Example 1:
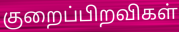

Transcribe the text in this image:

குறைப்பிறவிகள்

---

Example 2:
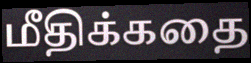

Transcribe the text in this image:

மீதிக்கதை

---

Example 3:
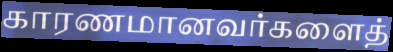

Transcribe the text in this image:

காரணமானவர்களைத்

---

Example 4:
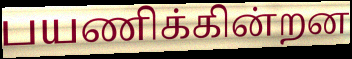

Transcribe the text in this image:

பயணிக்கின்றன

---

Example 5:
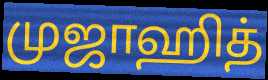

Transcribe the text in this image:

முஜாஹித்